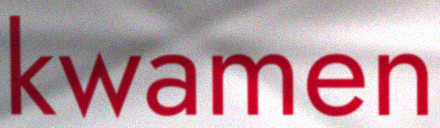
kwamen